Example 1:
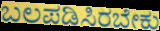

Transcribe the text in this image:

ಬಲಪಡಿಸಿರಬೇಕು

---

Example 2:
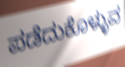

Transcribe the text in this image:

ಪಡೆದುಕೊಳ್ಳುವ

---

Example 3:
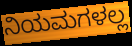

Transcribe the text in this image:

ನಿಯಮಗಳಲ್ಲ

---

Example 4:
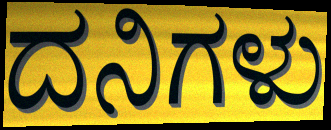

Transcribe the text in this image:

ದನಿಗಳು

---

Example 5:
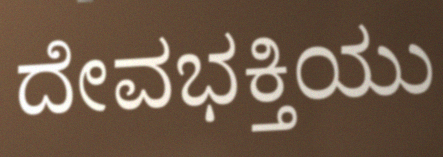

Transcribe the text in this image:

ದೇವಭಕ್ತಿಯು